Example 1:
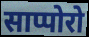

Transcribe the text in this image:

साप्पोरो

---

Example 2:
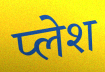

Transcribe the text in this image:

प्लेश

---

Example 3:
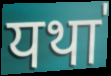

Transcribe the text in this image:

यथा॑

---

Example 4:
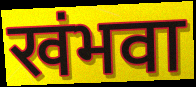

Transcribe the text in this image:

खंभवा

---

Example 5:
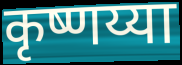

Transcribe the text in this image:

कृष्णय्या